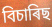
বিচাৰিছ